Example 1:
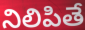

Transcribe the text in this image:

నిలిపితే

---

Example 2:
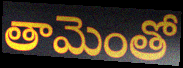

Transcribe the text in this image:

తామెంతో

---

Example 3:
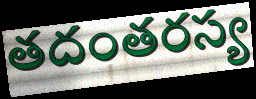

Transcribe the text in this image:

తదంతరస్య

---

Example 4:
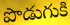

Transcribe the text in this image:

పొడుగుకి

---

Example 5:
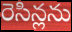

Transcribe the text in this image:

రెసిన్లను